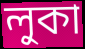
লুকা